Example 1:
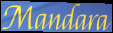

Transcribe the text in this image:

Mandara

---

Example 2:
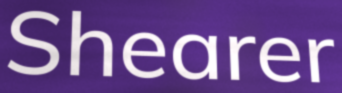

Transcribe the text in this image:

Shearer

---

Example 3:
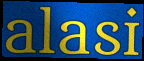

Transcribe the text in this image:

alasi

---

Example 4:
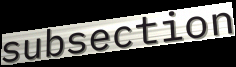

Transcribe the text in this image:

subsection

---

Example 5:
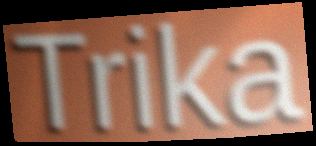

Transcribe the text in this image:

Trika